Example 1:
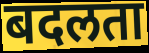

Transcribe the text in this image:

बदलता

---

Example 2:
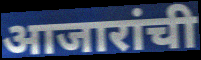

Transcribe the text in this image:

आजारांची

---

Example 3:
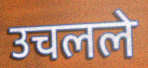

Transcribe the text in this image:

उचलले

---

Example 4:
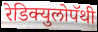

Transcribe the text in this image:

रेडिक्युलोपॅथी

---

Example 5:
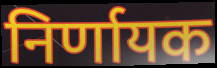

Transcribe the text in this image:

निर्णायक